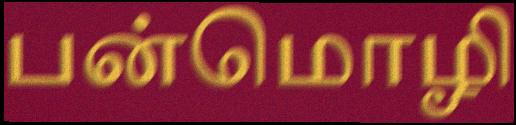
பன்மொழி